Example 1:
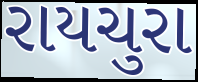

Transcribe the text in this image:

રાયચુરા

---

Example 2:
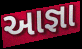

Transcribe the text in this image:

આજ્ઞા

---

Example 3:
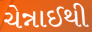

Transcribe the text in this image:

ચેન્નાઈથી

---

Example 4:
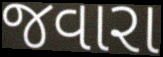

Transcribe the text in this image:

જવારા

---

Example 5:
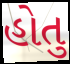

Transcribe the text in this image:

હોતુ